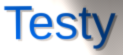
Testy